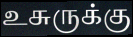
உசுருக்கு